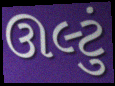
ઊલ્ટું